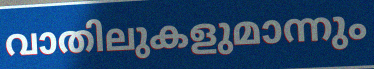
വാതിലുകളുമാന്നും